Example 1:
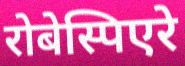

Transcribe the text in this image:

रोबेस्पिएरे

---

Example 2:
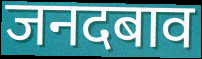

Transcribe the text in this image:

जनदबाव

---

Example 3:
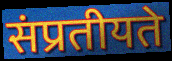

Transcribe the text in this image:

संप्रतीयते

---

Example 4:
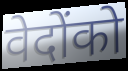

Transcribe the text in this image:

वेदोंको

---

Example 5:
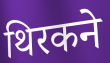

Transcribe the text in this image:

थिरकने